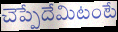
చెప్పేదేమిటంటే